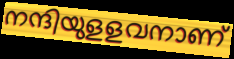
നന്ദിയുളളവനാണ്